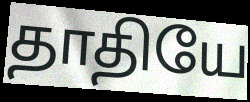
தாதியே